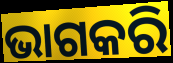
ଭାଗକରି